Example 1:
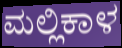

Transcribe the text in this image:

ಮಲ್ಲಿಕಾಳ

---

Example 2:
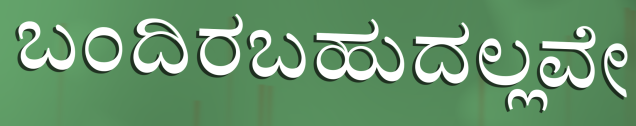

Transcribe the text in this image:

ಬಂದಿರಬಹುದಲ್ಲವೇ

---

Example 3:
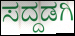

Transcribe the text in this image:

ಸದ್ದಡಗಿ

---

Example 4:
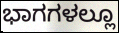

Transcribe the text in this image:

ಭಾಗಗಳಲ್ಲೂ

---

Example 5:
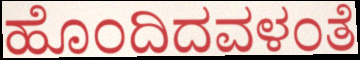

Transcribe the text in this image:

ಹೊಂದಿದವಳಂತೆ